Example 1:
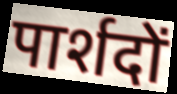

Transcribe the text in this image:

पार्शदों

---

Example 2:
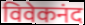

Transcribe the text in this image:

विवेकनंद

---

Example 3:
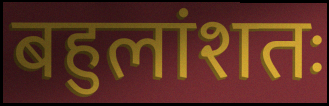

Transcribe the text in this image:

बहुलांशतः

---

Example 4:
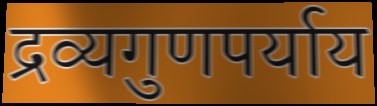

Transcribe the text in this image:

द्रव्यगुणपर्याय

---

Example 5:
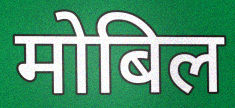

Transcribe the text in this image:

मोबिल